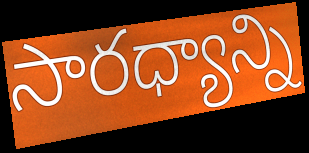
సారధ్యాన్ని